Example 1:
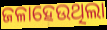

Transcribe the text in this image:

ଜଳାହେଉଥିଲା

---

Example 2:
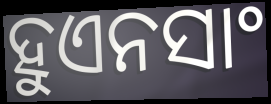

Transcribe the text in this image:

ହୁଏନସାଂ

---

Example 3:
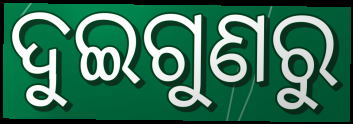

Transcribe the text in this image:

ଦୁଇଗୁଣରୁ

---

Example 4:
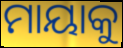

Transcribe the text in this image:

ମାୟାକୁ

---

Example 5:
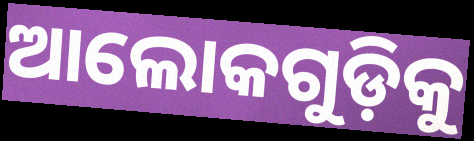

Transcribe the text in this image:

ଆଲୋକଗୁଡ଼ିକୁ